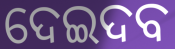
ଦେଇଦବ